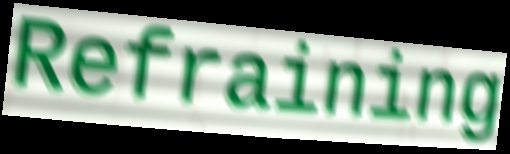
Refraining